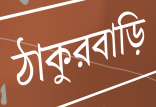
ঠাকুরবাড়ি